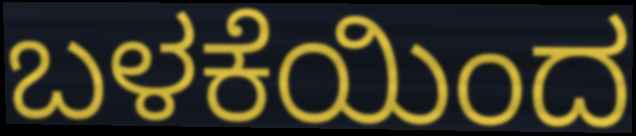
ಬಳಕೆಯಿಂದ